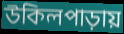
উকিলপাড়ায়